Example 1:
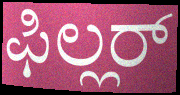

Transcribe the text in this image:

ಫಿಲ್ಲರ್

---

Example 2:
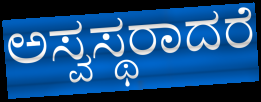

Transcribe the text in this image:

ಅಸ್ವಸ್ಥರಾದರೆ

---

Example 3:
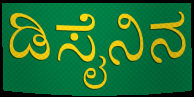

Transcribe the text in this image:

ಡಿಸೈನಿನ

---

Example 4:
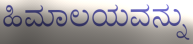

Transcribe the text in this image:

ಹಿಮಾಲಯವನ್ನು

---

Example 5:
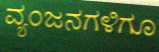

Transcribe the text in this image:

ವ್ಯಂಜನಗಳಿಗೂ